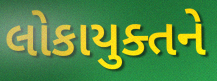
લોકાયુક્તને